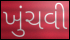
ખુંચવી